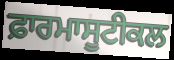
ਫ਼ਾਰਮਾਸੂਟੀਕਲ